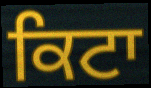
ਕਿਟਾ